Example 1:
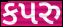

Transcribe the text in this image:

કપરુ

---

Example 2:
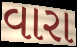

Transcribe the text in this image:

વારા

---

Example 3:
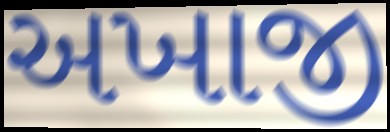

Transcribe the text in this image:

અખાજી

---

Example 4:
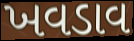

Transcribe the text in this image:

ખવડાવ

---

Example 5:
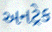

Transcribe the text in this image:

અનટ્રેક